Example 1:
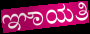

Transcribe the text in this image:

ಞಾಯತಿ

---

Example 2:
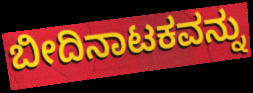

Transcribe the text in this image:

ಬೀದಿನಾಟಕವನ್ನು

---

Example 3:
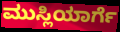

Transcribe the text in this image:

ಮುಸ್ಲಿಯಾರ್ಗೆ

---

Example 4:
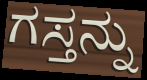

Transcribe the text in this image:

ಗಸ್ತನ್ನು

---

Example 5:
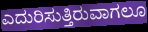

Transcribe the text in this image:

ಎದುರಿಸುತ್ತಿರುವಾಗಲೂ